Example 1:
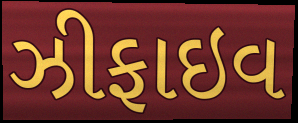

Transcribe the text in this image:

ઝીફાઇવ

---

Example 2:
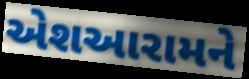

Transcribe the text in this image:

એશઆરામને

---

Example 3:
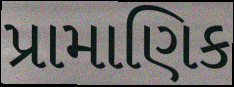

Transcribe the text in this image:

પ્રામાણિક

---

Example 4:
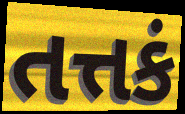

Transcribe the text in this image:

તત્તકં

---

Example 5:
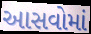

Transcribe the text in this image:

આસવોમાં